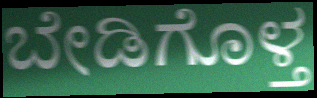
ಬೇಡಿಗೊಳ್ತ